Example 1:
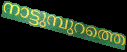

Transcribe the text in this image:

നാട്ടുമ്പുറത്തെ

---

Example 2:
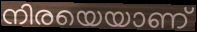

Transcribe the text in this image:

നിരയെയാണ്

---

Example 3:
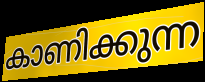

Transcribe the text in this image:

കാണിക്കുന്ന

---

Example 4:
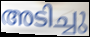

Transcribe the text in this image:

അടിച്ചു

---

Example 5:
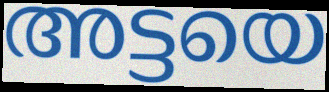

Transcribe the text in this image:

അട്ടയെ